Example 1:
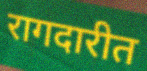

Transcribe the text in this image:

रागदारीत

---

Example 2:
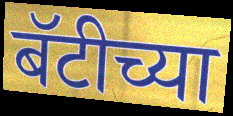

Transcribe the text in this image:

बॅटीच्या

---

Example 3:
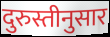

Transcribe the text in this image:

दुरुस्तीनुसार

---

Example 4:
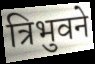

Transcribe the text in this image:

त्रिभुवने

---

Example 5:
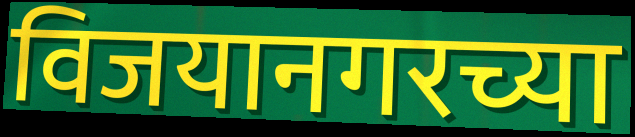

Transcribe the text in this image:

विजयानगरच्या